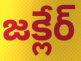
జక్లేర్